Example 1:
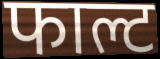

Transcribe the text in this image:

फाल्ट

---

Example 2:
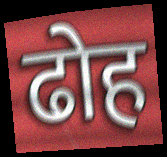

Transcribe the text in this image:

ढोह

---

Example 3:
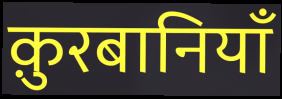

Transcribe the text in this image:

क़ुरबानियाँ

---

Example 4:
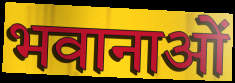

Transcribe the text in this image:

भवानाओं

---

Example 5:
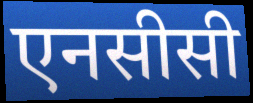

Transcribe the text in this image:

एनसीसी